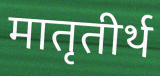
मातृतीर्थ